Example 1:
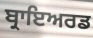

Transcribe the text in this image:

ਬ੍ਰਾਇਅਰਡ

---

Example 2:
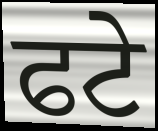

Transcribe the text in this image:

ਫਟੇ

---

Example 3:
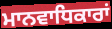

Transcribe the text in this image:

ਮਾਨਵਾਧਿਕਾਰਾਂ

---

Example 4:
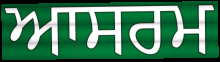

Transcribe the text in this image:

ਆਸਰਮ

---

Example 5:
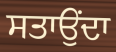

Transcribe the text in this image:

ਸਤਾਉਂਦਾ